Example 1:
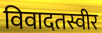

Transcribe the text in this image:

विवादतस्वीर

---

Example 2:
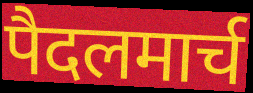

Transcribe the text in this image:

पैदलमार्च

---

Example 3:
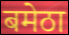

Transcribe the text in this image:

बमेठा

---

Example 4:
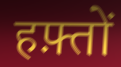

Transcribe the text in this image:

हफ़्तों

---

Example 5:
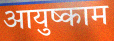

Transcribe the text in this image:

आयुष्काम